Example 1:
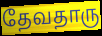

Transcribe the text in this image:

தேவதாரு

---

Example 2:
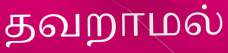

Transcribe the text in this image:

தவறாமல்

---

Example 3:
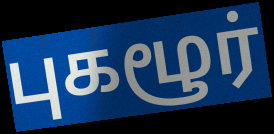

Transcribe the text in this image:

புகழூர்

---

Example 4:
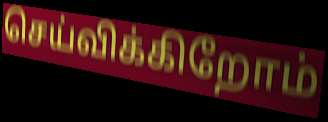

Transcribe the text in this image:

செய்விக்கிறோம்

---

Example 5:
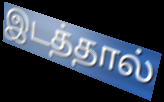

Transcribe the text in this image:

இடத்தால்